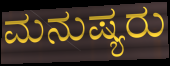
ಮನುಷ್ಯರು